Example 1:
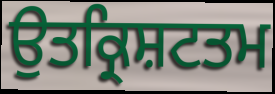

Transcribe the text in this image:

ਉਤਕ੍ਰਿਸ਼ਟਤਮ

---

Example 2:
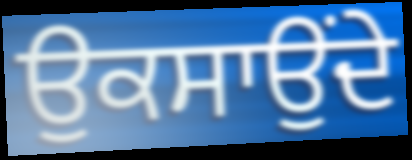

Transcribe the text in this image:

ਉਕਸਾਉਂਦੇ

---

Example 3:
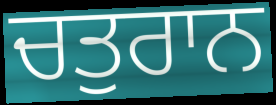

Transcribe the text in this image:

ਚਤੁਰਾਨ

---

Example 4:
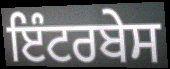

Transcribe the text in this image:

ਇੰਟਰਬੇਸ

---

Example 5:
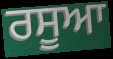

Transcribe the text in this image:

ਰਸੂਆ